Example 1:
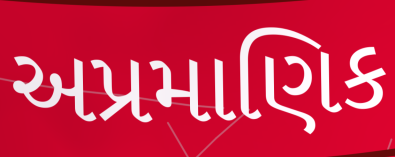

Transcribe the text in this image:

અપ્રમાણિક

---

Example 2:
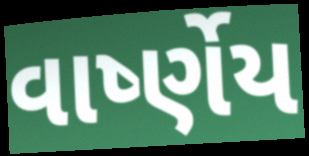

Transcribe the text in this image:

વાર્ષ્ણેય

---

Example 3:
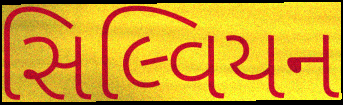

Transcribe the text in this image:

સિલ્વિયન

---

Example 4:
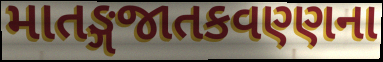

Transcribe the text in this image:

માતઙ્ગજાતકવણ્ણના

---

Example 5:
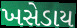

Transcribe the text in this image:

ખસેડાય